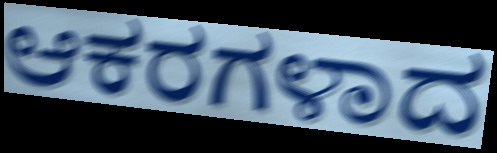
ಆಕರಗಳಾದ